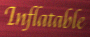
Inflatable